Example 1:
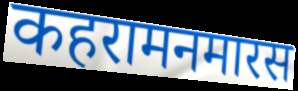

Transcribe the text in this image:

कहरामनमारस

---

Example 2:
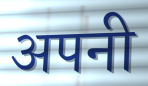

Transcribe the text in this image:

अपनी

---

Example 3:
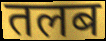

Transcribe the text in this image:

तलब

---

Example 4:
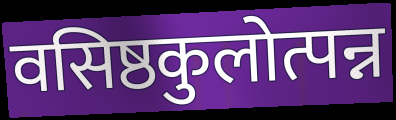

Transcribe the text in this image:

वसिष्ठकुलोत्पन्न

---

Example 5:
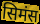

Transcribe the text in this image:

सिमंस